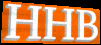
HHB